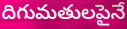
దిగుమతులపైనే